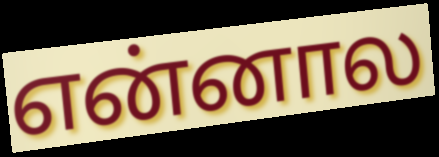
என்னால